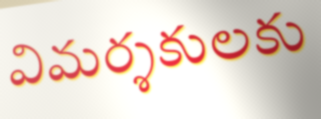
విమర్శకులకు